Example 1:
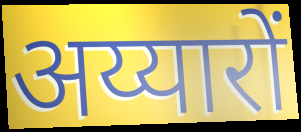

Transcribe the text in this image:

अय्यारों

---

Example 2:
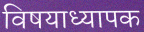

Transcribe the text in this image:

विषयाध्यापक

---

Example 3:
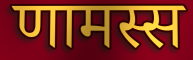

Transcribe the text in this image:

णामस्स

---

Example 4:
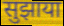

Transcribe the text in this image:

सुझाया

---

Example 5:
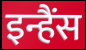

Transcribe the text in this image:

इन्हैंस